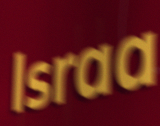
Israa